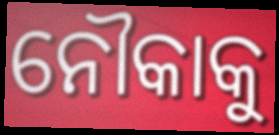
ନୌକାକୁ